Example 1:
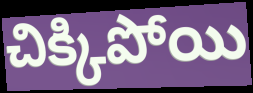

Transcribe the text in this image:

చిక్కిపోయి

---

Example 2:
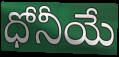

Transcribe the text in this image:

ధోనీయే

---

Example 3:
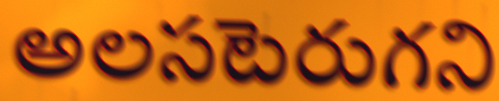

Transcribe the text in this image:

అలసటెరుగని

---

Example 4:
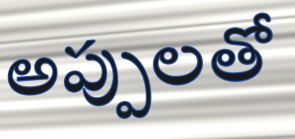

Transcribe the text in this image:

అప్పులతో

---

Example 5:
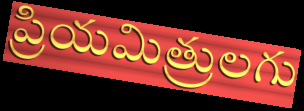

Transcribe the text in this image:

ప్రియమిత్రులగు